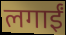
लगाईं